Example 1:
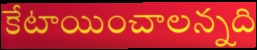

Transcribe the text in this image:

కేటాయించాలన్నది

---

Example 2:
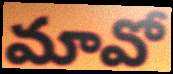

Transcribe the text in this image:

మావో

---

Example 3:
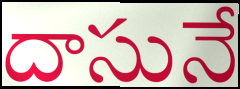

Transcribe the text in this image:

దాసునే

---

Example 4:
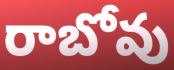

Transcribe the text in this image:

రాబోవు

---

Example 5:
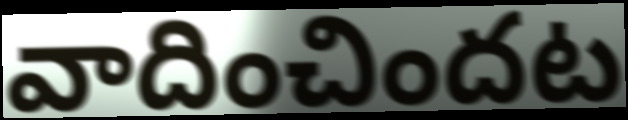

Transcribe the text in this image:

వాదించిందట